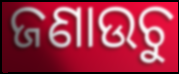
ଜଣାଉଚୁ